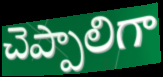
చెప్పాలిగా